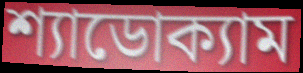
শ্যাডোক্যাম